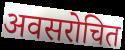
अवसरोचित